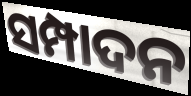
ସମ୍ପାଦନ